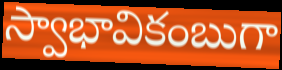
స్వాభావికంబుగా